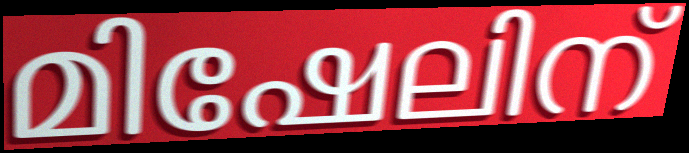
മിഷേലിന്